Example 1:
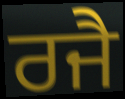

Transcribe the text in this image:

ਰਜੈ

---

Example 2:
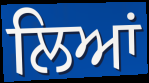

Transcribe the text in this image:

ਲਿਆਂ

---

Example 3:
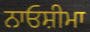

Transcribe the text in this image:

ਨਾਓਸ਼ੀਮਾ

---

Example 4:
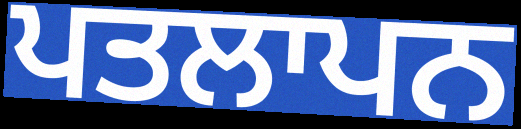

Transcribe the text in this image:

ਪਤਲਾਪਨ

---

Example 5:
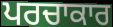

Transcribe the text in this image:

ਪਰਚਾਕਾਰ